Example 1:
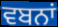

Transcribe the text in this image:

ਵਬਨਾਂ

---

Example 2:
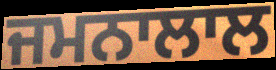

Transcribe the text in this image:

ਜਮਨਾਲਾਲ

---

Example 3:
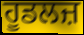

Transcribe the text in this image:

ਹੂਡਲਜ਼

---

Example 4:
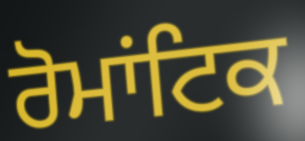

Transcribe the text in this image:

ਰੋਮਾਂਟਿਕ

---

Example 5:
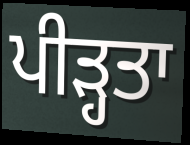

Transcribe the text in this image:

ਪੀੜ੍ਹਤਾ